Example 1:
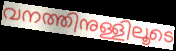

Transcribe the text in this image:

വനത്തിനുള്ളിലൂടെ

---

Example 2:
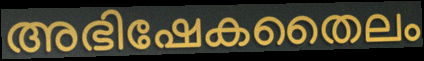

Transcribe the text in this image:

അഭിഷേകതൈലം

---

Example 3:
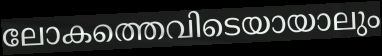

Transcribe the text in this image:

ലോകത്തെവിടെയായാലും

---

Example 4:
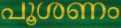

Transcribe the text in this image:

പൂശണം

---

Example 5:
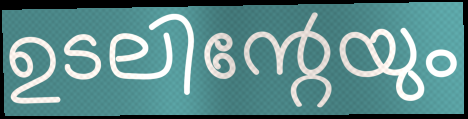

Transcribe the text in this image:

ഉടലിന്റേയും